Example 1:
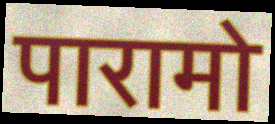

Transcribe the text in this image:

पारामो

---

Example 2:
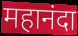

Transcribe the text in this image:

महानंदा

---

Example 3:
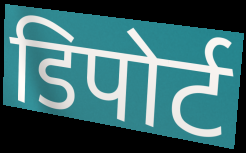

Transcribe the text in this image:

डिपोर्ट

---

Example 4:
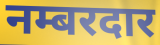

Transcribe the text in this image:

नम्बरदार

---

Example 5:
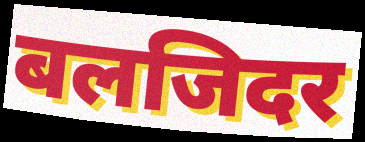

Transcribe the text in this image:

बलजिदर